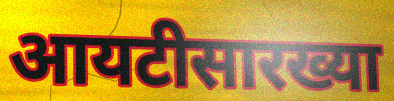
आयटीसारख्या